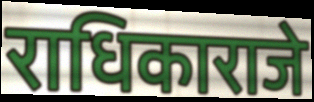
राधिकाराजे